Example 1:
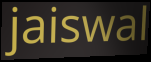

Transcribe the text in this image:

jaiswal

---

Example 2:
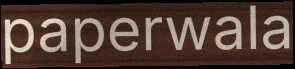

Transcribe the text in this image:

paperwala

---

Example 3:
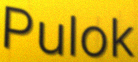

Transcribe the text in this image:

Pulok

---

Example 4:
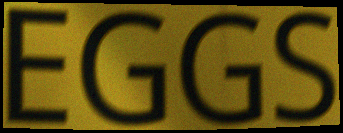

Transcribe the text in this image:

EGGS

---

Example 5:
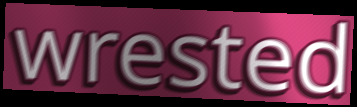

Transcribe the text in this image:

wrested